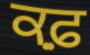
ਕ਼ਫ਼